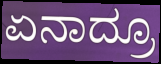
ಏನಾದ್ರೂ